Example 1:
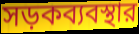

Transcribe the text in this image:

সড়কব্যবস্থার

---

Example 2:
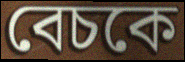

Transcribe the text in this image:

বেচকে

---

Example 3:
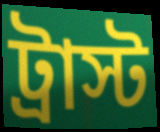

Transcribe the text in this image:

ট্রাস্ট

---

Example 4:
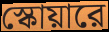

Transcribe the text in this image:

স্কোয়ারে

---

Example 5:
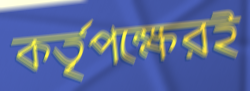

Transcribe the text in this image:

কর্তৃপক্ষেরই